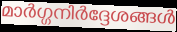
മാർഗ്ഗനിർദ്ദേശങ്ങൾ